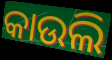
କାଉଲି